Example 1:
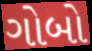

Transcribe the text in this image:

ગોબો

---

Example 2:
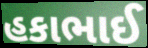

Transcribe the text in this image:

હકાભાઈ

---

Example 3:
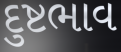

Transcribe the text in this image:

દુષ્ટભાવ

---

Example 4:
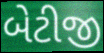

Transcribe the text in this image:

બેટીજી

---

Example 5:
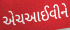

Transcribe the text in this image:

એચઆઈવીને